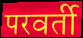
परवर्ती